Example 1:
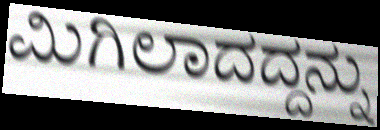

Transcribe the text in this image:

ಮಿಗಿಲಾದದ್ದನ್ನು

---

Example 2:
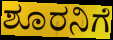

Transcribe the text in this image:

ಶೂರನಿಗೆ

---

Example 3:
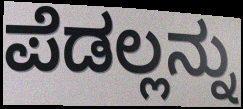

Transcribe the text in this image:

ಪೆಡಲ್ಲನ್ನು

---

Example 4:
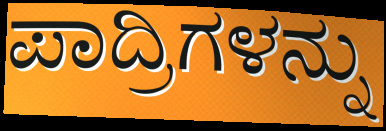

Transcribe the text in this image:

ಪಾದ್ರಿಗಳನ್ನು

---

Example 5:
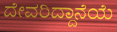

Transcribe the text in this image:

ದೇವರಿದ್ದಾನೆಯೆ